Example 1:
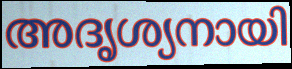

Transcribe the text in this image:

അദൃശ്യനായി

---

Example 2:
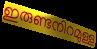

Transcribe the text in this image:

ഇരുണ്ടനിറമുള്ള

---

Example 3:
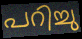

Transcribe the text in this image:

പറിച്ചു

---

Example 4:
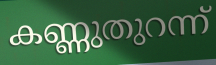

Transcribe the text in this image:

കണ്ണുതുറന്ന്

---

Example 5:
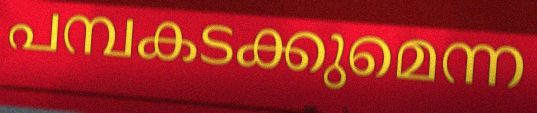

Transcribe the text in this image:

പമ്പകടക്കുമെന്ന